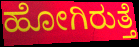
ಹೋಗಿರುತ್ತೆ